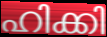
ഹിക്കി